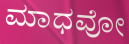
ಮಾಧವೋ